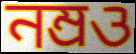
নম্রও